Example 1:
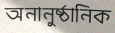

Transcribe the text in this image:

অনানুষ্ঠানিক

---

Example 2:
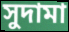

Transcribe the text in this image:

সুদামা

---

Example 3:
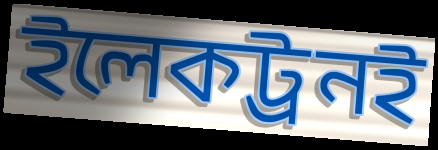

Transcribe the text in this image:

ইলেকট্রনই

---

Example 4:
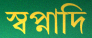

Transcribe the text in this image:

স্বপ্নাদি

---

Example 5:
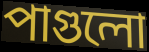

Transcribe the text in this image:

পাগুলো